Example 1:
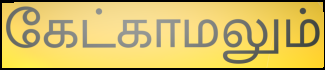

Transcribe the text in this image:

கேட்காமலும்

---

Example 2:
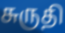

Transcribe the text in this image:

சுருதி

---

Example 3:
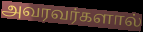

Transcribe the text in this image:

அவரவர்களால்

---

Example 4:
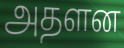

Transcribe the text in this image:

அதளன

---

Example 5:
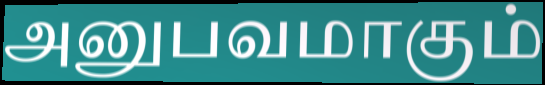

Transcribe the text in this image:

அனுபவமாகும்